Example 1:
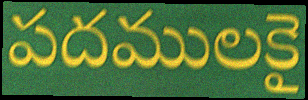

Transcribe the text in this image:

పదములకై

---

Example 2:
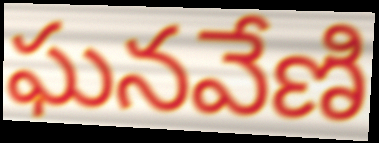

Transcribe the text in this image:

ఘనవేణి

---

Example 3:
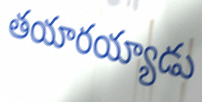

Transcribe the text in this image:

తయారయ్యాడు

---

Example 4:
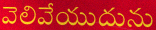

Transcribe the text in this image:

వెలివేయుదును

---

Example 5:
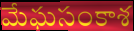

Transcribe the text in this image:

మేఘసంకాశ